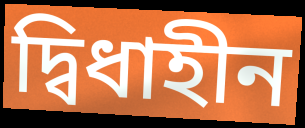
দ্বিধাহীন